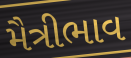
મૈત્રીભાવ